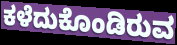
ಕಳೆದುಕೊಂಡಿರುವ